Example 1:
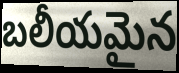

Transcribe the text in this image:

బలీయమైన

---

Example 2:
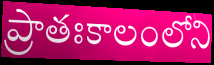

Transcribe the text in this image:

ప్రాతఃకాలంలోని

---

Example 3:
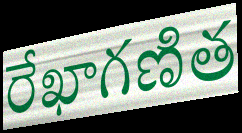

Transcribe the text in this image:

రేఖాగణిత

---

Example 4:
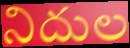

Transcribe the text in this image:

నిదుల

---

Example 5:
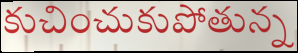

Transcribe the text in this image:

కుచించుకుపోతున్న